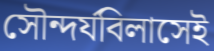
সৌন্দর্যবিলাসেই